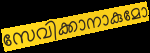
സേവിക്കാനാകുമോ